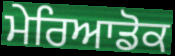
ਮੇਰਿਆਡੋਕ